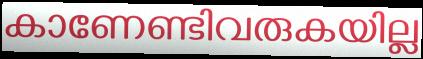
കാണേണ്ടിവരുകയില്ല